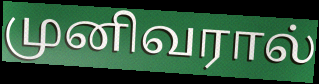
முனிவரால்